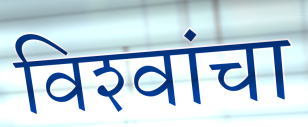
विश्वांचा